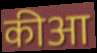
कीआ